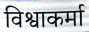
विश्वाकर्मा